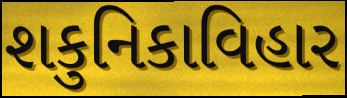
શકુનિકાવિહાર